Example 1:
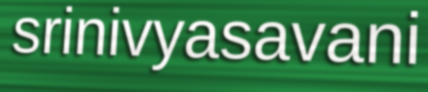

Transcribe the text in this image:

srinivyasavani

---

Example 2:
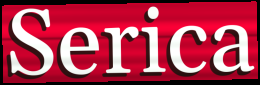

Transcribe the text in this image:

Serica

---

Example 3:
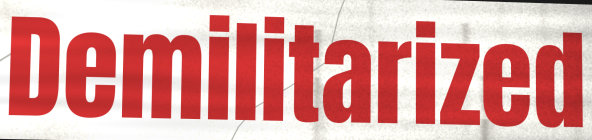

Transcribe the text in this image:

Demilitarized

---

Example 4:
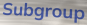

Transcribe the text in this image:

Subgroup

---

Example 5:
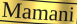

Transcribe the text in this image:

Mamani